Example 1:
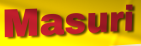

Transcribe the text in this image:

Masuri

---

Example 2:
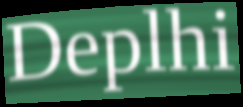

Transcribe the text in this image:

Deplhi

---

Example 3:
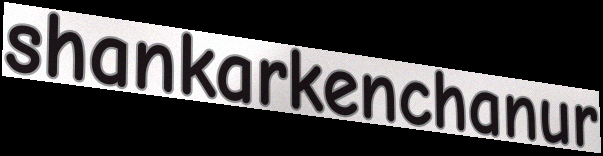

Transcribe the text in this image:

shankarkenchanur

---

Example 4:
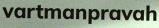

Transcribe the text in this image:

vartmanpravah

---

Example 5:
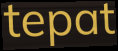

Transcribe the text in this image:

tepat